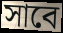
সাবে